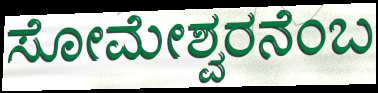
ಸೋಮೇಶ್ವರನೆಂಬ